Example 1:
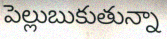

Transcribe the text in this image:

పెల్లుబుకుతున్నా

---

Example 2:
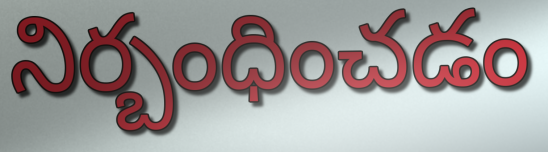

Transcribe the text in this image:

నిర్బంధించడం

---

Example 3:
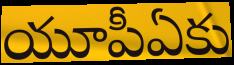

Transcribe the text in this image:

యూపీఏకు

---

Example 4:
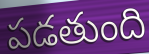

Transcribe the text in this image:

పడతుంది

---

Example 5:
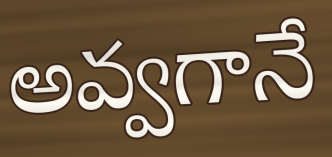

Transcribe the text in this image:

అవ్వగానే